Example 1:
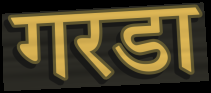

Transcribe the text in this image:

गरडा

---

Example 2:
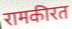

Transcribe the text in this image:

रामकीरत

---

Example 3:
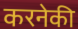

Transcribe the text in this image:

करनेकी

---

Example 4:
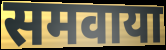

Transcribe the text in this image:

समवाया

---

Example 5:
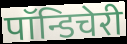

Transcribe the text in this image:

पॉन्डिचेरी